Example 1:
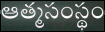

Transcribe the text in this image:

ఆత్మసంస్థం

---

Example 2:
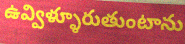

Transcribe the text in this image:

ఉవ్విళ్ళూరుతుంటాను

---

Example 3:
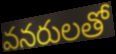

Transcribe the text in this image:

వనరులతో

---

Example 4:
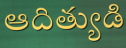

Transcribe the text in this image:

ఆదిత్యుడి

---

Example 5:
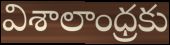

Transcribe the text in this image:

విశాలాంధ్రకు